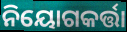
ନିୟୋଗକର୍ତ୍ତା